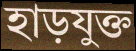
হাড়যুক্ত